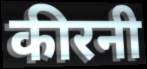
कीरनी